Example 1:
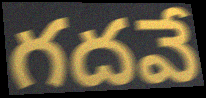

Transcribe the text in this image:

గదవే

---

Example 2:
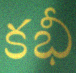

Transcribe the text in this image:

కభీ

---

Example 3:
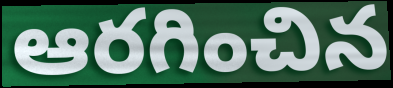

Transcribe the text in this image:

ఆరగించిన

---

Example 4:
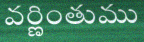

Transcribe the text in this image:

వర్ణింతుము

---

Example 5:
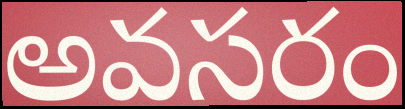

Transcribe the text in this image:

అవసరం